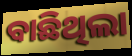
ବାଛିଥିଲା